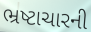
ભ્રષ્ટાચારની